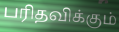
பரிதவிக்கும்